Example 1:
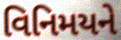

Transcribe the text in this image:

વિનિમયને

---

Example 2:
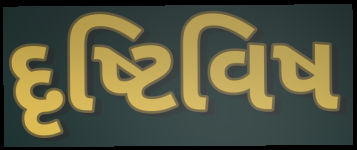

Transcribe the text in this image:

દૃષ્ટિવિષ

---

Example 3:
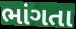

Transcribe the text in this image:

ભાંગતા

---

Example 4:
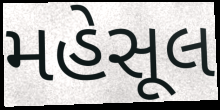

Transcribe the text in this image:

મહેસૂલ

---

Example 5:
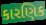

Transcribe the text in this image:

કારણિક